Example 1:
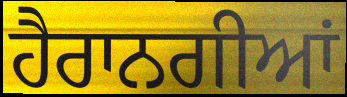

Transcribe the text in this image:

ਹੈਰਾਨਗੀਆਂ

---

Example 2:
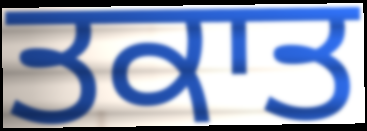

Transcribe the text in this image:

ਤਕਾਤ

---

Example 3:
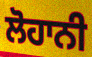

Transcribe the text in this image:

ਲੋਹਾਨੀ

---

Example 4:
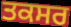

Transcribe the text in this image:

ਤਕਸਰ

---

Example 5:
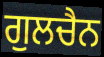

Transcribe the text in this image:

ਗੁਲਚੈਨ